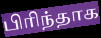
பிரிந்தாக